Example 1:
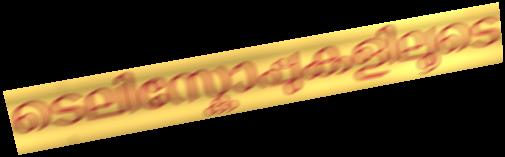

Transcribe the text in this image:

ടെലിസ്കോപ്പുകളിലൂടെ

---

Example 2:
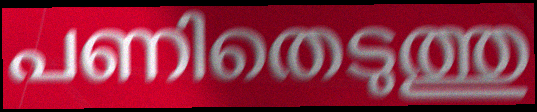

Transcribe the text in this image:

പണിതെടുത്തു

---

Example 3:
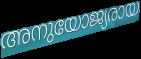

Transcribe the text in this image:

അനുയോജ്യരായ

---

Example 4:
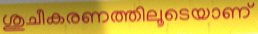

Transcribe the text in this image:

ശുചീകരണത്തിലൂടെയാണ്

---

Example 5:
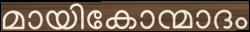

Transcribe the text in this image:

മായികോന്മാദം